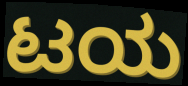
ಟಯ